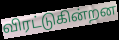
விரட்டுகின்றன